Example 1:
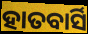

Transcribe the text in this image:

ହାତବାର୍ସି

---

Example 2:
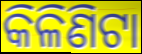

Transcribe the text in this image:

କିଳିଣିଟା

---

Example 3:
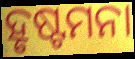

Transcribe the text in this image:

ହୃଷ୍ଟମନା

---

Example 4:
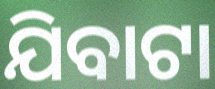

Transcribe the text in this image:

ଯିବାଟା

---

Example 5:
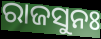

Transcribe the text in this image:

ରାଜସୁନଃ